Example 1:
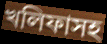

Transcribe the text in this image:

খলিফাসহ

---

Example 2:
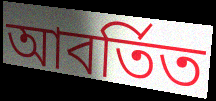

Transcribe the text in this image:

আবর্তিত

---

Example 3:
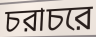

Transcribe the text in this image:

চরাচরে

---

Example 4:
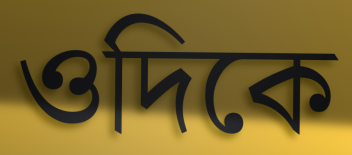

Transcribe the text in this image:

ওদিকে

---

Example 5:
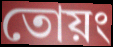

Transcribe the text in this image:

তোয়ং